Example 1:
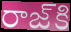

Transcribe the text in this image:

రాజ్‌కి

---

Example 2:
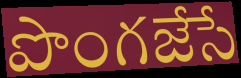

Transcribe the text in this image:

పొంగజేసే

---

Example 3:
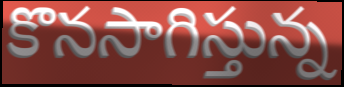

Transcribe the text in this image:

కొనసాగిస్తున్న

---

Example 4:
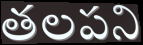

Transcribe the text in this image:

తలపని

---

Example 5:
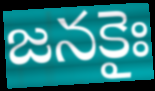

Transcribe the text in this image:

జనకైః